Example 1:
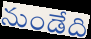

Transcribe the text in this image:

నుండేది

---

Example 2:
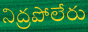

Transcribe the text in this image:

నిద్రపోలేరు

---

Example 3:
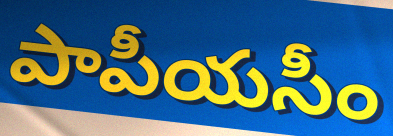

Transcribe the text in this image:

పాపీయసీం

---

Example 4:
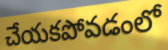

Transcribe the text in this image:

చేయకపోవడంలో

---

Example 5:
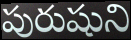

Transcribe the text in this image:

పురుషుని